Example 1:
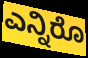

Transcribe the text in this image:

ಎನ್ನಿರೊ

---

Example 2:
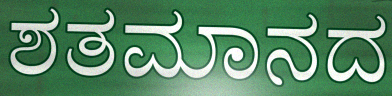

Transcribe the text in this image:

ಶತಮಾನದ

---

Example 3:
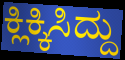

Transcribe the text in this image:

ಕ್ಲಿಕ್ಕಿಸಿದ್ದು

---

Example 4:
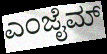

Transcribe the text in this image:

ಎಂಜೈಮ್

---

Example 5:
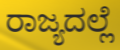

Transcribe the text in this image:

ರಾಜ್ಯದಲ್ಲೆ